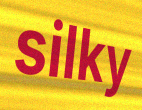
silky